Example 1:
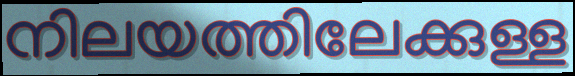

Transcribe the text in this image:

നിലയത്തിലേക്കുള്ള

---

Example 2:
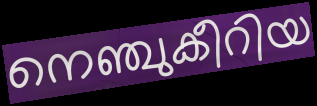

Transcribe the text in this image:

നെഞ്ചുകീറിയ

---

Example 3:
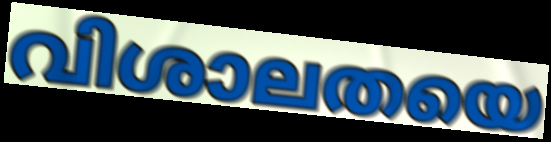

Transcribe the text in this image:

വിശാലതയെ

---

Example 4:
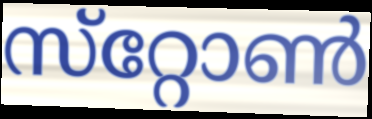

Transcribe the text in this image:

സ്‌റ്റോൺ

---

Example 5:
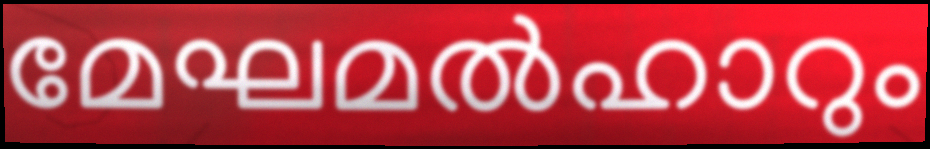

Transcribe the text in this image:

മേഘമൽഹാറും